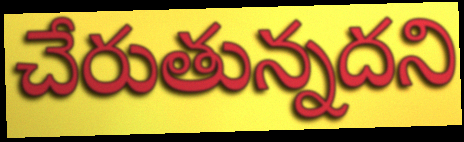
చేరుతున్నదని